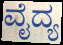
ವೈದ್ಯ